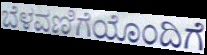
ಬೆಳವಣಿಗೆಯೊಂದಿಗೆ